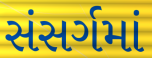
સંસર્ગમાં